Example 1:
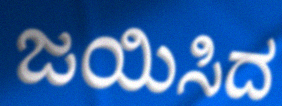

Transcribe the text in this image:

ಜಯಿಸಿದ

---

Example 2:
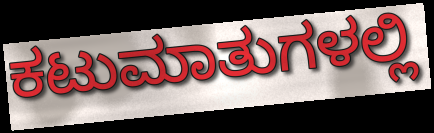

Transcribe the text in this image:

ಕಟುಮಾತುಗಳಲ್ಲಿ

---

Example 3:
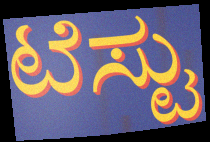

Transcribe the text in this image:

ಟೆಸ್ಟು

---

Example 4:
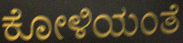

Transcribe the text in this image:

ಕೋಳಿಯಂತೆ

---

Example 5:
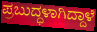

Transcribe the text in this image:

ಪ್ರಬುದ್ಧಳಾಗಿದ್ದಾಳೆ